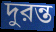
দুরন্ত